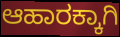
ಆಹಾರಕ್ಕಾಗಿ